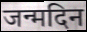
जन्मदिन